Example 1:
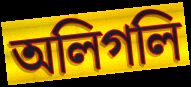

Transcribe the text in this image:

অলিগলি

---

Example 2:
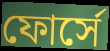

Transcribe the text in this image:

ফোর্সে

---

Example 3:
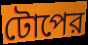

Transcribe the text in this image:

টোপের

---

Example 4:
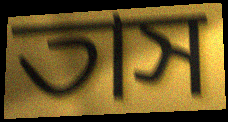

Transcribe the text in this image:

তাস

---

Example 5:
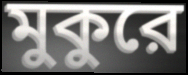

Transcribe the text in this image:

মুকুরে